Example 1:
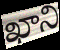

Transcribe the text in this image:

ఖాని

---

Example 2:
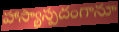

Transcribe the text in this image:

హాస్యాస్పదంగానూ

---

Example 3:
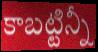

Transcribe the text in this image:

కాబట్టిన్నీ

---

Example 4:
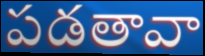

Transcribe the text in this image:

పడతావా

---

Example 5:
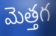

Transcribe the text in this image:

మెత్తగ